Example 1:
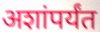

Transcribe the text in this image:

अशांपर्यंत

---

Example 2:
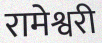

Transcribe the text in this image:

रामेश्वरी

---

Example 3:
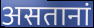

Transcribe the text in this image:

असतानां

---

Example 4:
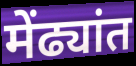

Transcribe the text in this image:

मेंढ्यांत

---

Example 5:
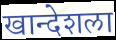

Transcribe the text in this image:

खान्देशला